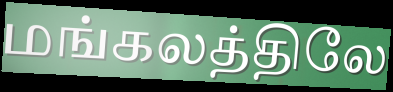
மங்கலத்திலே